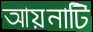
আয়নাটি